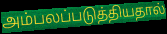
அம்பலப்படுத்தியதால்